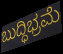
ಬುದ್ಧಿಭ್ರಮೆ